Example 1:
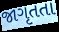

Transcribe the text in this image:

જાગૃતતા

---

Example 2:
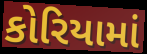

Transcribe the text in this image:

કોરિયામાં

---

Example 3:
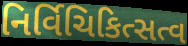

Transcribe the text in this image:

નિર્વિચિકિત્સત્વ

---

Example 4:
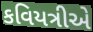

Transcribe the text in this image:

કવિયત્રીએ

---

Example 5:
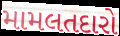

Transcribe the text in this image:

મામલતદારો